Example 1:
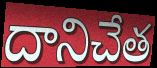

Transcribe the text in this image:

దానిచేత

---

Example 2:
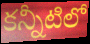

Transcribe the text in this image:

కన్నీటిలో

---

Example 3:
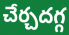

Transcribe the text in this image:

చేర్చదగ్గ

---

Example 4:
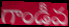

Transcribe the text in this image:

గాండీవ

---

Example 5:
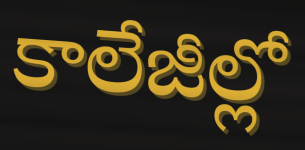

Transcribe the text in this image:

కాలేజీల్లో